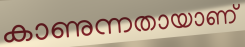
കാണുന്നതായാണ്